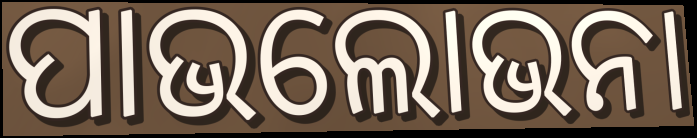
ପାଭଲୋଭନା